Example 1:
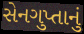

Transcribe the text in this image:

સેનગુપ્‍તાનું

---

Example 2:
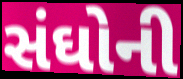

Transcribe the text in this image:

સંઘોની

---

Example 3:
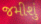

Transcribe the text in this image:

જમીશું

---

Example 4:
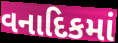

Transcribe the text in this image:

વનાદિકમાં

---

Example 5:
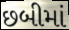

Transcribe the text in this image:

છબીમાં